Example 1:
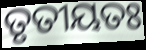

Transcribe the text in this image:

ତୃତୀୟତଃ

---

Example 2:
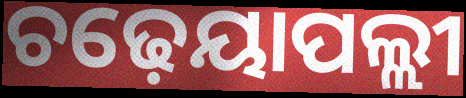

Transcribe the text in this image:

ଚଢ଼େୟାପଲ୍ଲୀ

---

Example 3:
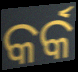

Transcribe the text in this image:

କର୍କ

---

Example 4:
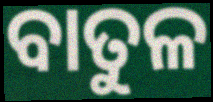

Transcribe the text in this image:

ବାତୁଳ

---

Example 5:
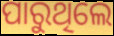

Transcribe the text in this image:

ପାରୁଥିଲେ